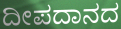
ದೀಪದಾನದ